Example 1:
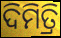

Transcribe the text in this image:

ଦିମିତ୍ରି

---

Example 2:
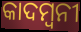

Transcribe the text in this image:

କାଦମ୍ୱନୀ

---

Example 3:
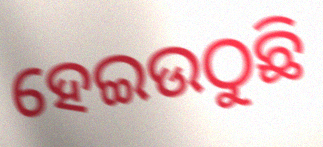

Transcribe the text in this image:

ହେଇଉଠୁଛି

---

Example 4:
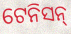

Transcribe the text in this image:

ଟେନିସନ୍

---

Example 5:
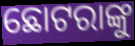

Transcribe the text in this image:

ଛୋଟରାଙ୍କୁ